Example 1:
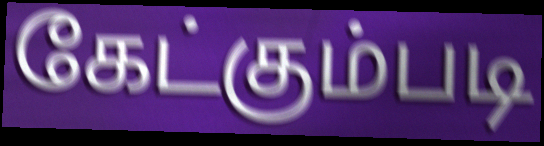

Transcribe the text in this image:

கேட்கும்படி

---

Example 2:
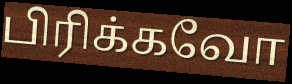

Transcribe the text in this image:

பிரிக்கவோ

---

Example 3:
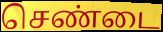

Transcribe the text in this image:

செண்டை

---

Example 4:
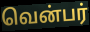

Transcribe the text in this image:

வென்பர்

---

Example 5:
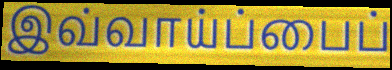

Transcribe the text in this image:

இவ்வாய்ப்பைப்